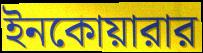
ইনকোয়ারার